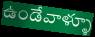
ఉండేవాళ్ళూ